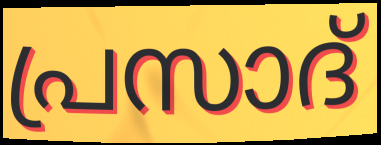
പ്രസാദ്